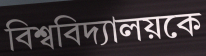
বিশ্ববিদ্যালয়কে